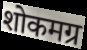
शोकमग्र